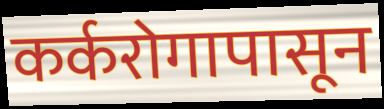
कर्करोगापासून